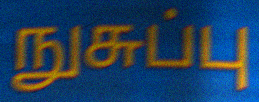
நுசுப்பு